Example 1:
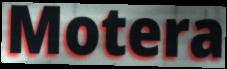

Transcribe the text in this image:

Motera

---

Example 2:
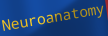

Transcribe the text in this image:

Neuroanatomy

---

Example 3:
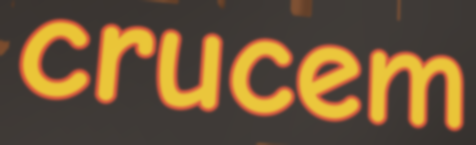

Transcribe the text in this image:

crucem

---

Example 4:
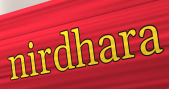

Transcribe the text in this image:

nirdhara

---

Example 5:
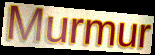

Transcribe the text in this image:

Murmur